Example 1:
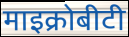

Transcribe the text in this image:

माइक्रोबीटी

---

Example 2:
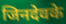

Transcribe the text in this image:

जिनदेवके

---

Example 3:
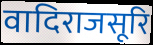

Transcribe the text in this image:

वादिराजसूरि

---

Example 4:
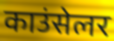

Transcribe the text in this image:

काउंसेलर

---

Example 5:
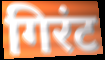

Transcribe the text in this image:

गिरंट